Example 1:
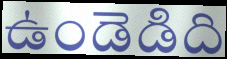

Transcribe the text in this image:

ఉండెడిది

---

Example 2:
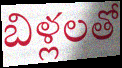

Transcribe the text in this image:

బిళ్లలతో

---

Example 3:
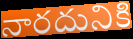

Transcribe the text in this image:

నారదునికి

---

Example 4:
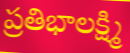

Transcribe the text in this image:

ప్రతిభాలక్ష్మి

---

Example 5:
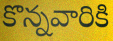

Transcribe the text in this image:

కొన్నవారికి